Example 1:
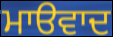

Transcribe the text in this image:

ਮਾੳਵਾਦ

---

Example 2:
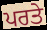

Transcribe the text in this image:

ਪਰਤੇ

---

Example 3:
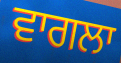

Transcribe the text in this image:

ਵਾਗਲਾ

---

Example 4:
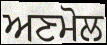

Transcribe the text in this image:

ਅਣਮੋਲ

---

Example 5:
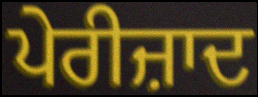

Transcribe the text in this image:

ਪੇਰੀਜ਼ਾਦ